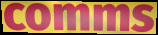
comms